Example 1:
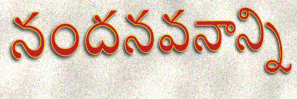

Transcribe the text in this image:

నందనవనాన్ని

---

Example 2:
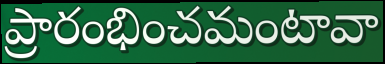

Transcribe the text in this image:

ప్రారంభించమంటావా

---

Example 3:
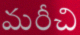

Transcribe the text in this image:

మరీచి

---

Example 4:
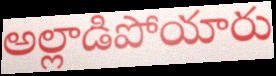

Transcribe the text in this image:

అల్లాడిపోయారు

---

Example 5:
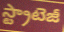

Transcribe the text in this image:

స్ట్రాటెజీ